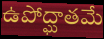
ఉపోద్ఘాతమే